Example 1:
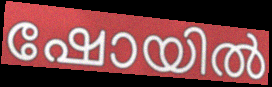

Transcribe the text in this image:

ഷോയിൽ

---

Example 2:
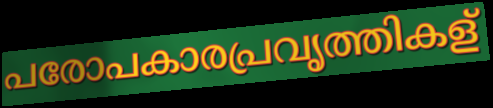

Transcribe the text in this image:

പരോപകാരപ്രവൃത്തികള്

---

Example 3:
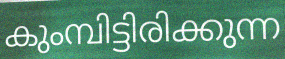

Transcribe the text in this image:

കുംമ്പിട്ടിരിക്കുന്ന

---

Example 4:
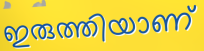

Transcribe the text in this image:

ഇരുത്തിയാണ്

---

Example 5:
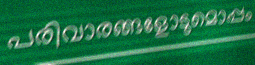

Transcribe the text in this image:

പരിവാരങ്ങളോടുമൊപ്പം